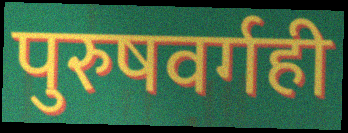
पुरुषवर्गही